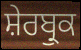
ਸ਼ੇਰਬ੍ਰੁਕ